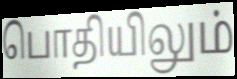
பொதியிலும்